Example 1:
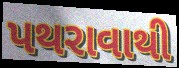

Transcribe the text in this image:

પથરાવાથી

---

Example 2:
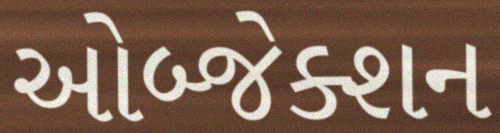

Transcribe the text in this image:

ઓબ્જેક્શન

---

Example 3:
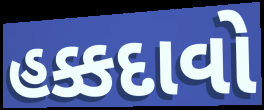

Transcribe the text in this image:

હક્કદાવો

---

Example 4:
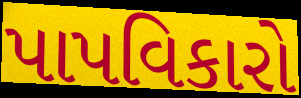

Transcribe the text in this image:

પાપવિકારો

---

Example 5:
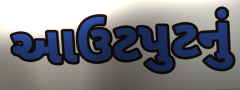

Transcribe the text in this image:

આઉટપુટનું